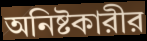
অনিষ্টকারীর